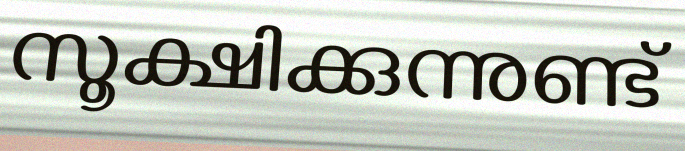
സൂക്ഷിക്കുന്നുണ്ട്